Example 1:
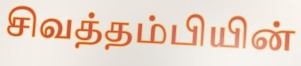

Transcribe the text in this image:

சிவத்தம்பியின்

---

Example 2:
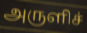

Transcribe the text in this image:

அருளிச்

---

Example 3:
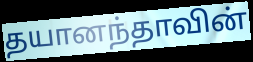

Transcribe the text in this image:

தயானந்தாவின்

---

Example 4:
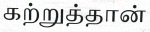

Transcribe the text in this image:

கற்றுத்தான்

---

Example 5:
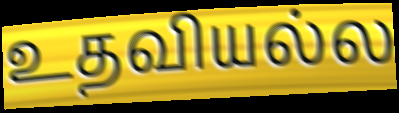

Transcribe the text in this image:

உதவியல்ல